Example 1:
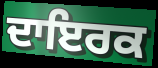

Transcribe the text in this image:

ਦਾਇਰਕ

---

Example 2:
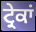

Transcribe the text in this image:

ਟ੍ਰੇਕਾਂ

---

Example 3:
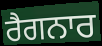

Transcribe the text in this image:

ਰੈਗਨਾਰ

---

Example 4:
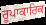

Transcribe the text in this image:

ਰੂਪਾਕਾਰਿਕ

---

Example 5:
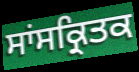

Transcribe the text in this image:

ਸਾਂਸਕ੍ਰਿਤਕ